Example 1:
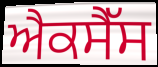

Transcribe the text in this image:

ਐਕਸੈੱਸ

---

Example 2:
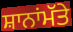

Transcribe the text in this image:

ਸ਼ਾਨਾਂਮੱਤੇ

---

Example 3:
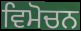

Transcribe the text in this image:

ਵਿਮੋਚਨ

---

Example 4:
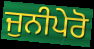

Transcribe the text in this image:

ਜੁਨੀਪੇਰੋ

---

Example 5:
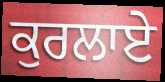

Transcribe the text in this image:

ਕੁਰਲਾਏ